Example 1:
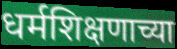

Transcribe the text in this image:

धर्मशिक्षणाच्या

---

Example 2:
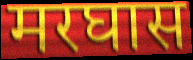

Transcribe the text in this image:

मरघास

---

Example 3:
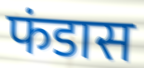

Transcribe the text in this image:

फंडास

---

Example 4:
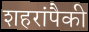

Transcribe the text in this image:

शहरांपैकी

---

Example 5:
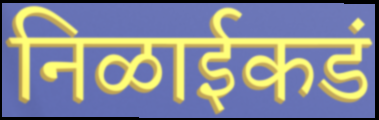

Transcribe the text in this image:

निळाईकडं